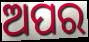
ଅପର